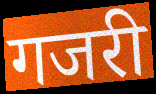
गजरी